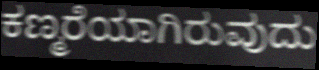
ಕಣ್ಮರೆಯಾಗಿರುವುದು